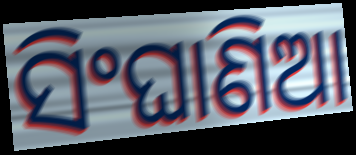
ସିଂଘାଣିଆ